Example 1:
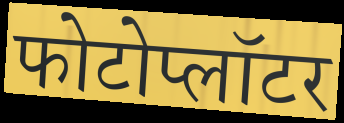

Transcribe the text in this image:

फोटोप्लॉटर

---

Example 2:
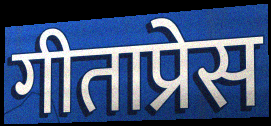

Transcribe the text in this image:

गीताप्रेस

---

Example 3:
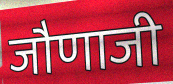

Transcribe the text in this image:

जौणाजी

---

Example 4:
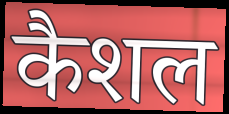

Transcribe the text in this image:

कैशल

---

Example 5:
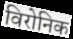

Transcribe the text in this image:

विरोनिक